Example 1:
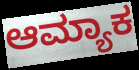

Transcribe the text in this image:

ಆಮ್ಯಾಕ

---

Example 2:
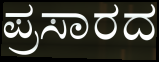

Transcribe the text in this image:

ಪ್ರಸಾರದ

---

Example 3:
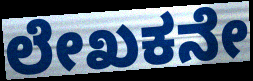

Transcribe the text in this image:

ಲೇಖಕನೇ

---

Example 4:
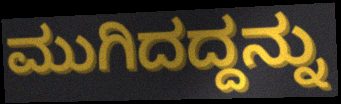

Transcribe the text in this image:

ಮುಗಿದದ್ದನ್ನು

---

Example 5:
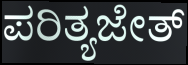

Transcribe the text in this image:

ಪರಿತ್ಯಜೇತ್